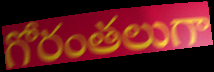
గోరంతలుగా